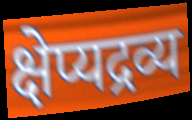
क्षेप्यद्रव्य